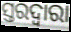
ସ୍ତରଦ୍ୱାରା